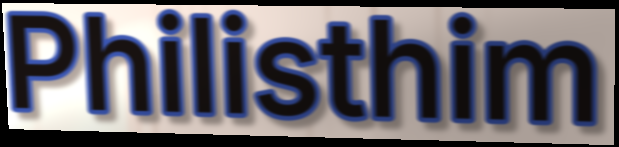
Philisthim